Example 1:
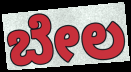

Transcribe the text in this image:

ಬೇಲ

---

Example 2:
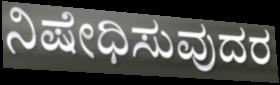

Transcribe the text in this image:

ನಿಷೇಧಿಸುವುದರ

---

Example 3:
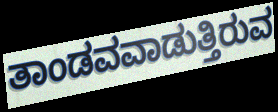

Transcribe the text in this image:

ತಾಂಡವವಾಡುತ್ತಿರುವ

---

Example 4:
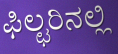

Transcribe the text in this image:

ಫಿಲ್ಟರಿನಲ್ಲಿ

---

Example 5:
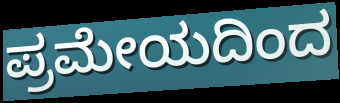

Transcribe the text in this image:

ಪ್ರಮೇಯದಿಂದ